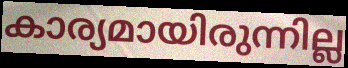
കാര്യമായിരുന്നില്ല